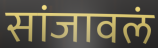
सांजावलं